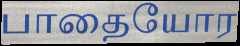
பாதையோர